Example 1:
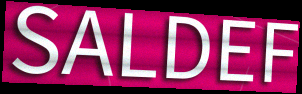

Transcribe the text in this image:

SALDEF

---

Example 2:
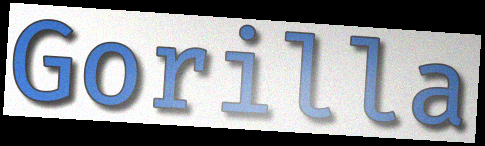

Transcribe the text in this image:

Gorilla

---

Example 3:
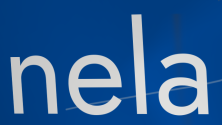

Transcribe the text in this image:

nela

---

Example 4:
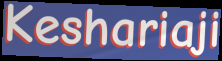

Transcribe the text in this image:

Keshariaji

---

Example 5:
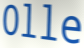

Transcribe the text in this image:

Olle